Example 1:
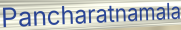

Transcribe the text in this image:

Pancharatnamala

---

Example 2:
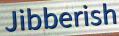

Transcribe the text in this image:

Jibberish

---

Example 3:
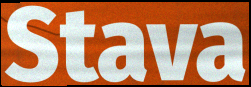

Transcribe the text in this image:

Stava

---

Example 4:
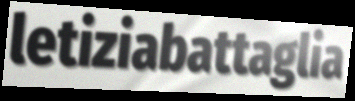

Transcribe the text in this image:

letiziabattaglia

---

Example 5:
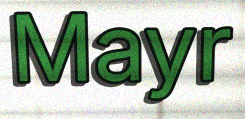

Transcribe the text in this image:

Mayr